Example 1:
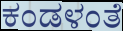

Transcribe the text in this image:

ಕಂಡಳಂತೆ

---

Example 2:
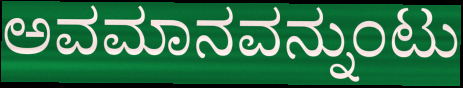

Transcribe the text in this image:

ಅವಮಾನವನ್ನುಂಟು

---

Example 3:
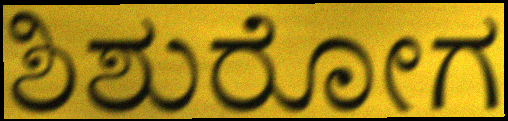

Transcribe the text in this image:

ಶಿಶುರೋಗ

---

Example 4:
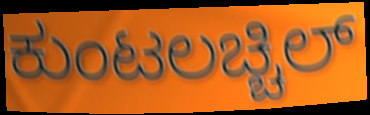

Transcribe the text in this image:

ಕುಂಟಲಚ್ಚಿಲ್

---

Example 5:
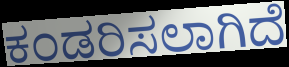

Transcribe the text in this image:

ಕಂಡರಿಸಲಾಗಿದೆ